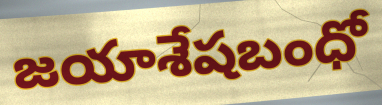
జయాశేషబంధో